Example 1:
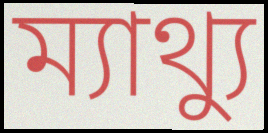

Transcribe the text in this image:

ম্যাথ্যু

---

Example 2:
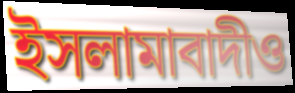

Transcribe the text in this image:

ইসলামাবাদীও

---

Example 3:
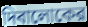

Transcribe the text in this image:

দিবালোকের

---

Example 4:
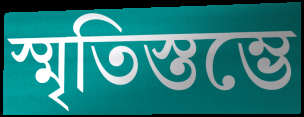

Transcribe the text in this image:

স্মৃতিস্তম্ভে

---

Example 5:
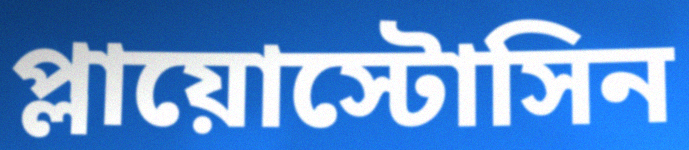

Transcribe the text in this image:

প্লায়োস্টোসিন